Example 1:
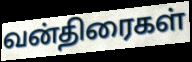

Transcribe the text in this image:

வன்திரைகள்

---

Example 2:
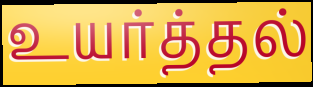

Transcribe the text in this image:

உயர்த்தல்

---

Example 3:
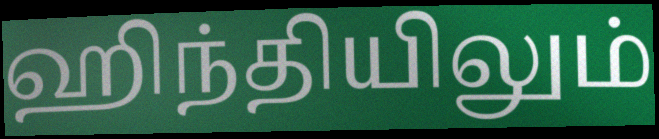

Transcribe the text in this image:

ஹிந்தியிலும்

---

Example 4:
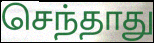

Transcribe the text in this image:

செந்தாது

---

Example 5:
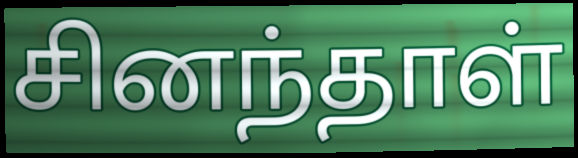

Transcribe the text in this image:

சினந்தாள்